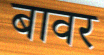
बावर